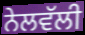
ਨੇਲਵੱਲੀ